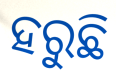
ହରୁଛି